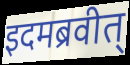
इदमब्रवीत्